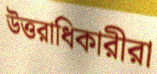
উত্তরাধিকারীরা